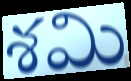
శమి